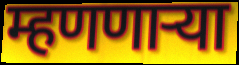
म्हणणार्‍या